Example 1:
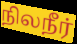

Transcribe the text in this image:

நிலநீர்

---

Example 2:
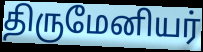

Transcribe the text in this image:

திருமேனியர்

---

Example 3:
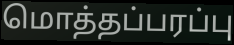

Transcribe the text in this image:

மொத்தப்பரப்பு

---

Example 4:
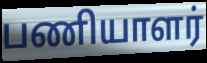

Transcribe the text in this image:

பணியாளர்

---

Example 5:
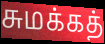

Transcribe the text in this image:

சுமக்கத்